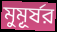
মুমূর্ষর